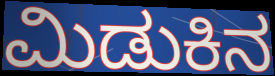
ಮಿಡುಕಿನ